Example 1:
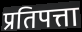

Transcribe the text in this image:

प्रतिपत्ता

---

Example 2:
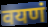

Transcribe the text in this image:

वयणं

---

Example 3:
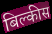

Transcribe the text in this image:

बिल्कीस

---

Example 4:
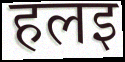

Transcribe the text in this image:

हलइ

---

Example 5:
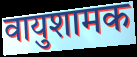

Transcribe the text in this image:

वायुशामक